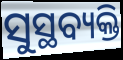
ସୁସ୍ଥବ୍ୟକ୍ତି